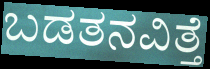
ಬಡತನವಿತ್ತೆ